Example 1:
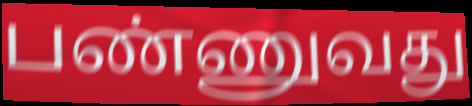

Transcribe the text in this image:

பண்ணுவது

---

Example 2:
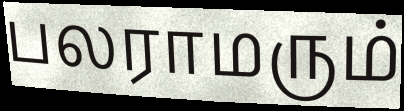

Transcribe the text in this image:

பலராமரும்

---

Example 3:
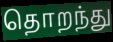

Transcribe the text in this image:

தொறந்து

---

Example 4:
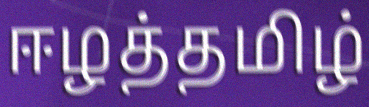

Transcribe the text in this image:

ஈழத்தமிழ்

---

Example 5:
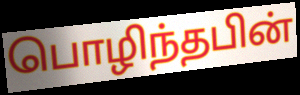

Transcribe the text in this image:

பொழிந்தபின்